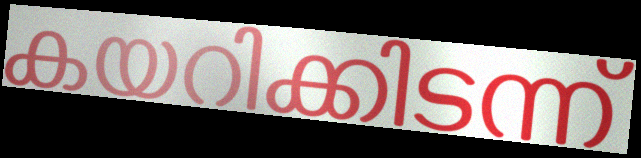
കയറിക്കിടന്ന്